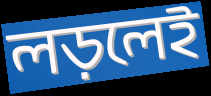
লড়লেই